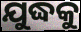
ଯୁଦ୍ଧକୁ